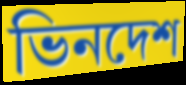
ভিনদেশ